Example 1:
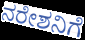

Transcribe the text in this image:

ನರೇಶನಿಗೆ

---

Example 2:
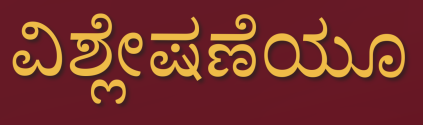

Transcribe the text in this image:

ವಿಶ್ಲೇಷಣೆಯೂ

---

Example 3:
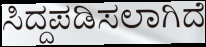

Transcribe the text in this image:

ಸಿದ್ದಪಡಿಸಲಾಗಿದೆ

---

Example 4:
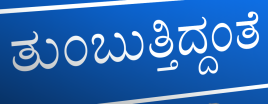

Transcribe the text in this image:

ತುಂಬುತ್ತಿದ್ದಂತೆ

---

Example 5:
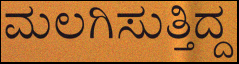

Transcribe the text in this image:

ಮಲಗಿಸುತ್ತಿದ್ದ